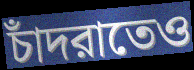
চাঁদরাতেও